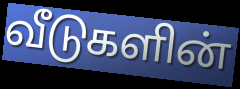
வீடுகளின்